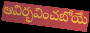
ఆవిర్భవించబోయే